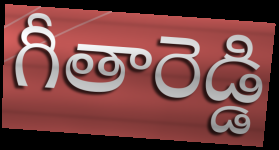
గీతారెడ్డి